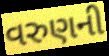
વરુણની